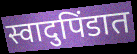
स्वादुपिंडात